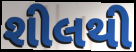
શીલથી